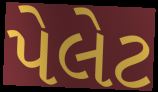
પેલેટ